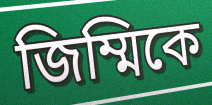
জিম্মিকে